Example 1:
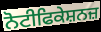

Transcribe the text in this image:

ਨੋਟੀਫਿਕੇਸ਼ਨਜ਼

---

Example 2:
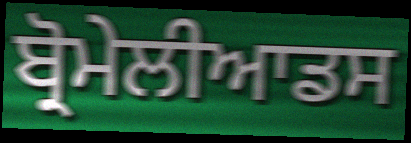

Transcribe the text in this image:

ਬ੍ਰੋਮੇਲੀਆਡਸ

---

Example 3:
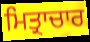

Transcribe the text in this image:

ਮਿਤ੍ਰਾਚਾਰ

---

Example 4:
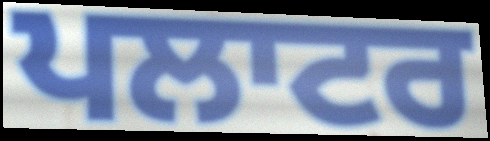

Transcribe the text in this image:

ਪਲਾਟਰ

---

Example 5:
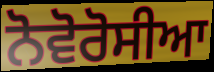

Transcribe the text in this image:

ਨੋਵੋਰੋਸੀਆ